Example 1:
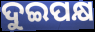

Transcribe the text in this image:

ଦୁଇପକ୍ଷ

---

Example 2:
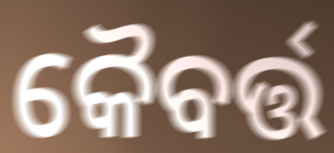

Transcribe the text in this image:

କୈବର୍ତ୍ତ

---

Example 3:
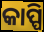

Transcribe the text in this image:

କାପ୍ପି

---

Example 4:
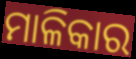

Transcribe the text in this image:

ମାଳିକାର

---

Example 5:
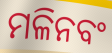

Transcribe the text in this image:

ମଳିନବଂ